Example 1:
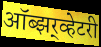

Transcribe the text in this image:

ऑब्झर्व्हेटरी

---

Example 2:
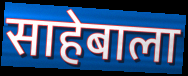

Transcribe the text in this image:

साहेबाला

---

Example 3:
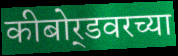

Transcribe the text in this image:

कीबोर्डवरच्या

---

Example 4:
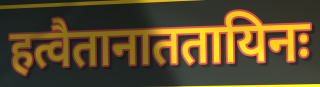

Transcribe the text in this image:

हत्वैतानाततायिनः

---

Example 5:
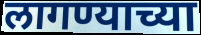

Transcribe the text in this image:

लागण्याच्या